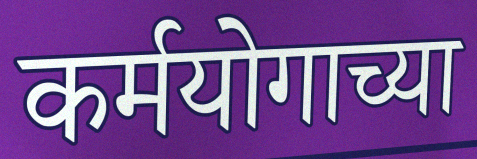
कर्मयोगाच्या